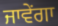
ਜਾਵੇਂਗਾ